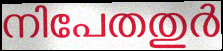
നിപേതതുർ